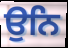
ਉਨਿ